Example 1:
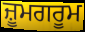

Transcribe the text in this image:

ਜ਼ੂਮਗਰੂਮ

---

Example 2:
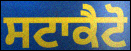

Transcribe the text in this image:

ਸਟਾਕੈਟੋ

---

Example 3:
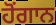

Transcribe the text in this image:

ਹੋਂਗਾਨ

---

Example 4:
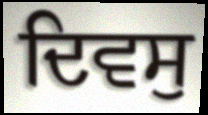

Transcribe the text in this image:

ਦਿਵਸੁ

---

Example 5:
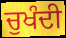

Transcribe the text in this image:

ਚੁਖੰਦੀ